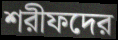
শরীফদের